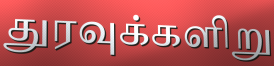
துரவுக்களிறு